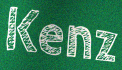
Kenz